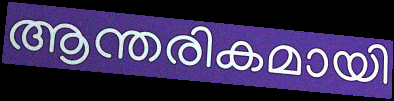
ആന്തരികമായി